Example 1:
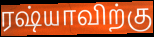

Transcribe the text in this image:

ரஷ்யாவிற்கு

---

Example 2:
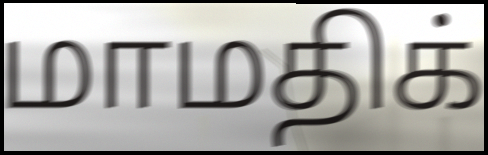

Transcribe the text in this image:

மாமதிக்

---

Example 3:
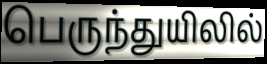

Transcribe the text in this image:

பெருந்துயிலில்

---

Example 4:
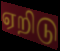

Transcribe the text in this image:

ஏறிடு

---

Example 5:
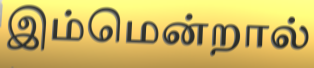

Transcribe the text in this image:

இம்மென்றால்